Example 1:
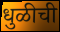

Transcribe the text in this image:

धुळीची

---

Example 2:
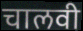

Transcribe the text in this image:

चालवी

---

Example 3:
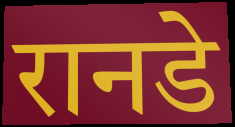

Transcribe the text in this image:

रानडे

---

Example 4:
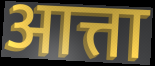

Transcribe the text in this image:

आत्ता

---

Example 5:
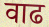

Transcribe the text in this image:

वाढ